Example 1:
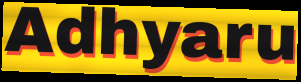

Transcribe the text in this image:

Adhyaru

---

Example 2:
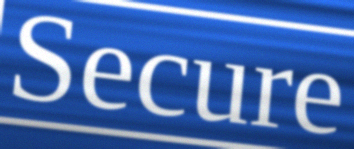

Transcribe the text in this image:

Secure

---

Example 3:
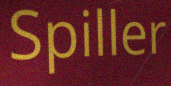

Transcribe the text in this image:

Spiller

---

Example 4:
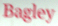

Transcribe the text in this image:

Bagley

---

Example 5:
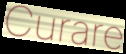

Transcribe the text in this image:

Curare